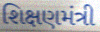
શિક્ષણમંત્રી